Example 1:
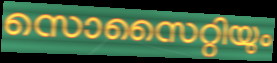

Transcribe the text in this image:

സൊസൈറ്റിയും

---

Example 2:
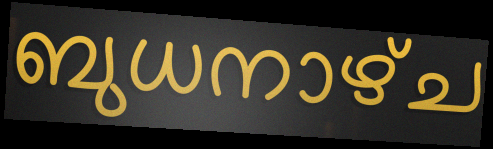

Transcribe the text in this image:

ബുധനാഴ്‌ച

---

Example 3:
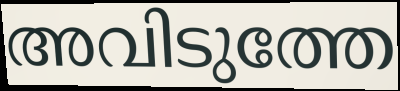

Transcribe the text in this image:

അവിടുത്തേ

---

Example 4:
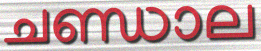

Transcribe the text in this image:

ചണ്ഡാല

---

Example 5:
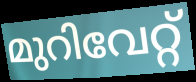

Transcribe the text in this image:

മുറിവേറ്റ്